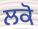
ਲਕੋ